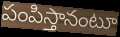
పంపిస్తానంటూ